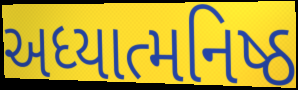
અધ્યાત્મનિષ્ઠ